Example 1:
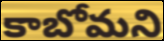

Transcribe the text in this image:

కాబోమని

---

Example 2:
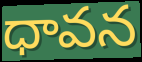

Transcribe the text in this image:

ధావన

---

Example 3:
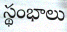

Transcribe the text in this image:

స్థంభాలు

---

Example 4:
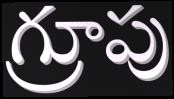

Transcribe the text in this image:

గ్రూపు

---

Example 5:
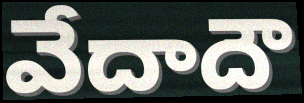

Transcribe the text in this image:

వేదాదౌ